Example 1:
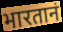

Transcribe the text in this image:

भारतानं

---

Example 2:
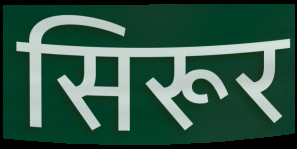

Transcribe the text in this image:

सिरूर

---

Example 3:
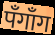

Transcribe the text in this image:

पँगाँग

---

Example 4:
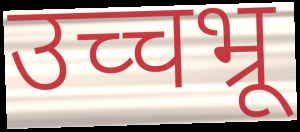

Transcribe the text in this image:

उच्चभ्रू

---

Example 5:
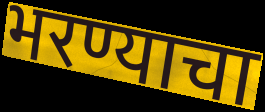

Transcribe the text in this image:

भरण्याचा